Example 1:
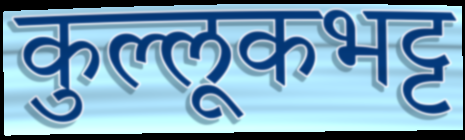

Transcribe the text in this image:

कुल्लूकभट्ट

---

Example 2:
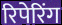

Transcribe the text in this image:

रिपेरिंग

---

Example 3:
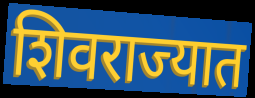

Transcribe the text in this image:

शिवराज्यात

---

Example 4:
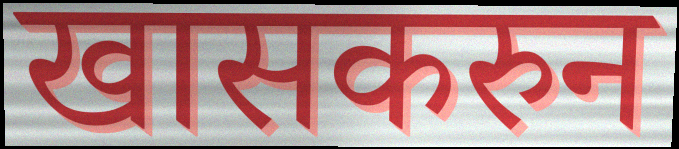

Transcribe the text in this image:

खासकरुन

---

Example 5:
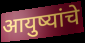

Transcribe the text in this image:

आयुष्यांचे